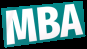
MBA